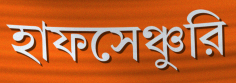
হাফসেঞ্চুরি